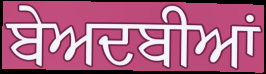
ਬੇਅਦਬੀਆਂ